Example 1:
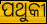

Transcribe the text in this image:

ପଥୁକୀ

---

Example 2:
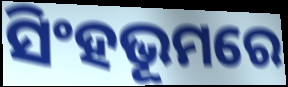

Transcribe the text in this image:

ସିଂହଭୂମରେ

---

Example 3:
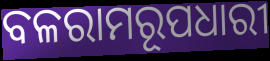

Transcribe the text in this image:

ବଳରାମରୂପଧାରୀ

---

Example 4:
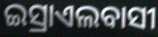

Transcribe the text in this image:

ଇସ୍ରାଏଲବାସୀ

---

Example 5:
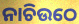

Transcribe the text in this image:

ନାଚିଉଠେ